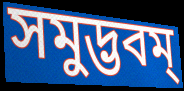
সমুদ্ভবম্